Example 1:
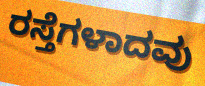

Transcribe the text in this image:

ರಸ್ತೆಗಳಾದವು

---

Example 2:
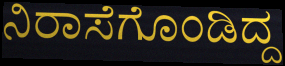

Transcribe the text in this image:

ನಿರಾಸೆಗೊಂಡಿದ್ದ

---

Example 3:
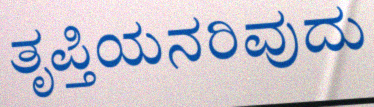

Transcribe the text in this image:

ತೃಪ್ತಿಯನರಿವುದು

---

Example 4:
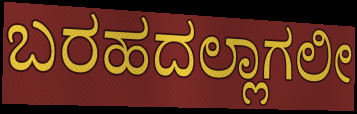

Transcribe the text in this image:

ಬರಹದಲ್ಲಾಗಲೀ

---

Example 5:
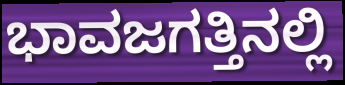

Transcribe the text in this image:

ಭಾವಜಗತ್ತಿನಲ್ಲಿ